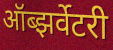
ऑब्झर्वेटरी